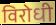
विरोधी